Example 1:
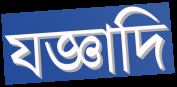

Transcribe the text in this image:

যজ্ঞাদি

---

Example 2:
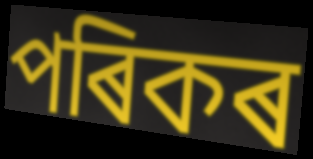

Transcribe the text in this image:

পৰিকৰ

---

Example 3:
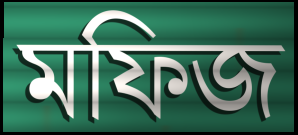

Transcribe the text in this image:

মফিজ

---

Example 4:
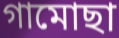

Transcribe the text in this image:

গামোছা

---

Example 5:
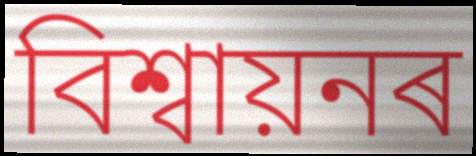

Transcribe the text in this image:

বিশ্বায়নৰ